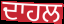
ਦਾਹਲ